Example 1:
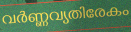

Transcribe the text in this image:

വർണ്ണവ്യതിരേകം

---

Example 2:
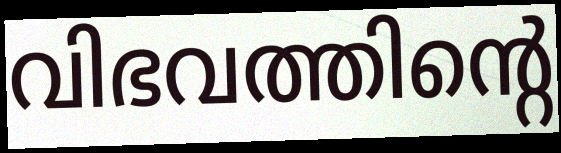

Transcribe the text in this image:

വിഭവത്തിന്റെ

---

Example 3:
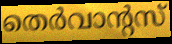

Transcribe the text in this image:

തെർവാന്റസ്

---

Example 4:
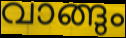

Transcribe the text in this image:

വാങ്ങും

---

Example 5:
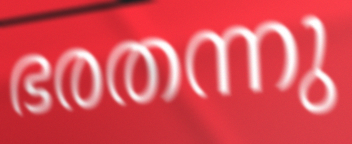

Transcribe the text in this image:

ഭരതന്നു